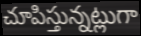
చూపిస్తున్నట్లుగా